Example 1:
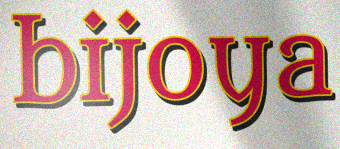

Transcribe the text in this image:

bijoya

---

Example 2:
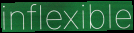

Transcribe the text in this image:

inflexible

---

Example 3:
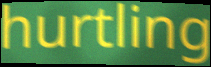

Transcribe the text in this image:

hurtling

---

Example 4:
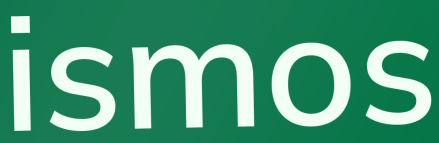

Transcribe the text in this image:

ismos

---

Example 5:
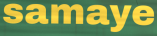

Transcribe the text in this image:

samaye